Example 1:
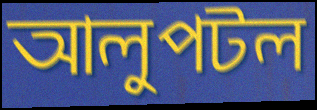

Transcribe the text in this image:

আলুপটল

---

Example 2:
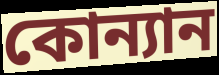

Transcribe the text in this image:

কোন্যান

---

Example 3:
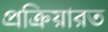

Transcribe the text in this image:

প্রক্রিয়ারত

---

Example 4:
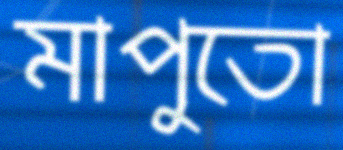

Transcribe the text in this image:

মাপুতো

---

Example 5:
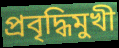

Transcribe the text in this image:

প্রবৃদ্ধিমুখী